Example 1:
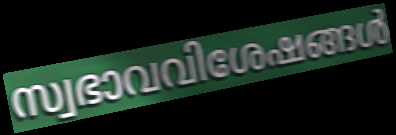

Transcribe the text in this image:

സ്വഭാവവിശേഷങ്ങൾ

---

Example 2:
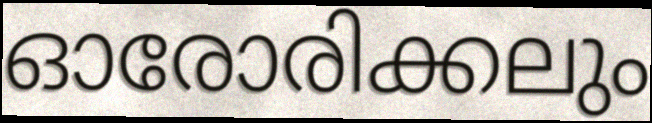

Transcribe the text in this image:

ഓരോരിക്കലും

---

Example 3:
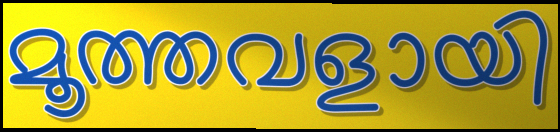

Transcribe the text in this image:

മൂത്തവളായി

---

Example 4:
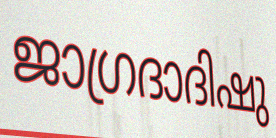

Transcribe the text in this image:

ജാഗ്രദാദിഷു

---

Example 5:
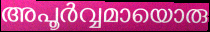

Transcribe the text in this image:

അപൂർവ്വമായൊരു